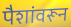
पैशांवरून